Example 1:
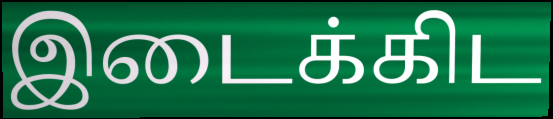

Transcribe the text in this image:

இடைக்கிட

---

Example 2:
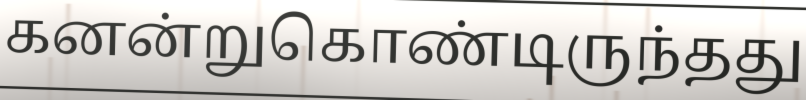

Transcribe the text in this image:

கனன்றுகொண்டிருந்தது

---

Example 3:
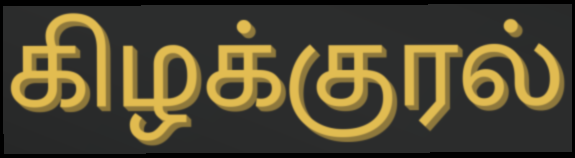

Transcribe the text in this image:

கிழக்குரல்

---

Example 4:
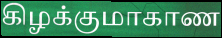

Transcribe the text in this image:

கிழக்குமாகாண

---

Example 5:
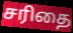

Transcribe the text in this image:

சரிதை